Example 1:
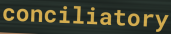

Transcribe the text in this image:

conciliatory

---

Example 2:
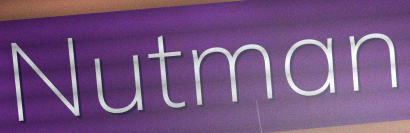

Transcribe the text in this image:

Nutman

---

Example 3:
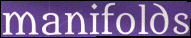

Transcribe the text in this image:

manifolds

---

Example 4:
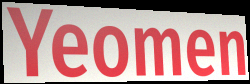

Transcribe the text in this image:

Yeomen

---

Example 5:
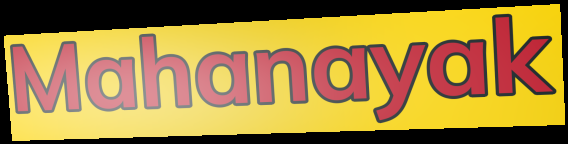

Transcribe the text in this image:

Mahanayak